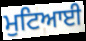
ਮੁਟਿਆਈ